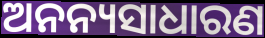
ଅନନ୍ୟସାଧାରଣ